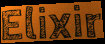
Elixir